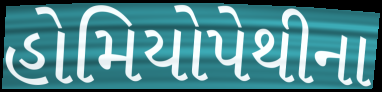
હોમિયોપેથીના